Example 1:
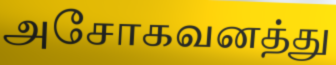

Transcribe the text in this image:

அசோகவனத்து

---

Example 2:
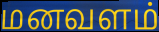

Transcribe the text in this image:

மனவளம்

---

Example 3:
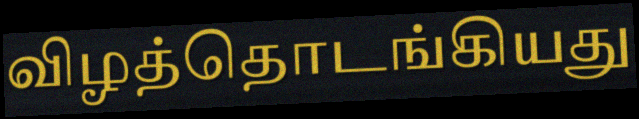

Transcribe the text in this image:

விழத்தொடங்கியது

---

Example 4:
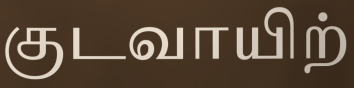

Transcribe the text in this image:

குடவாயிற்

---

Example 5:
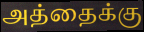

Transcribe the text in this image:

அத்தைக்கு